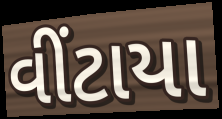
વીંટાયા